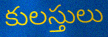
కులస్తులు